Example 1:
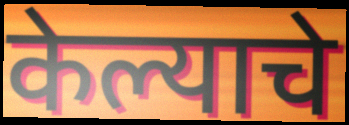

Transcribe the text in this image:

केल्याचे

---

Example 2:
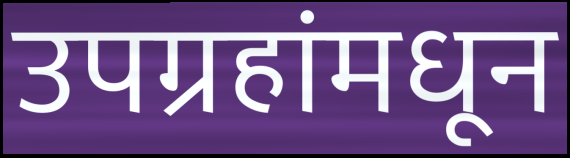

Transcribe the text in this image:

उपग्रहांमधून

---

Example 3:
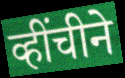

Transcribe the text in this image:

व्हींचीने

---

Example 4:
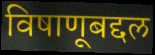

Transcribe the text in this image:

विषाणूबद्दल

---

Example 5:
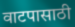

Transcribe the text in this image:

वाटपासाठी